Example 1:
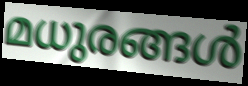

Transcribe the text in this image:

മധുരങ്ങൾ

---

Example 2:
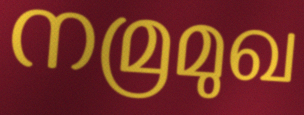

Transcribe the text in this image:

നമ്രമുഖ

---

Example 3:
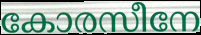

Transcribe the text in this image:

കോരസീനേ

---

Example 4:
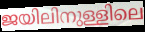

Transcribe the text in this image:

ജയിലിനുള്ളിലെ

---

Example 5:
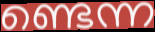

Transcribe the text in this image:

ണ്ടെന്ന